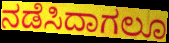
ನಡೆಸಿದಾಗಲೂ